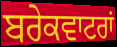
ਬਰੇਕਵਾਟਰਾਂ